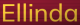
Ellinda